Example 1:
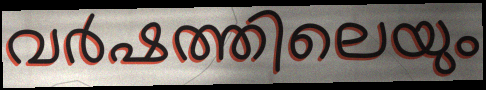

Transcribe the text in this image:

വർഷത്തിലെയും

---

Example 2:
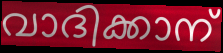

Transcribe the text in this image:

വാദിക്കാന്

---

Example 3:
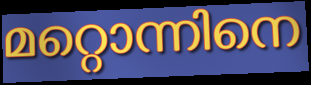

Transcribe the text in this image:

മറ്റൊന്നിനെ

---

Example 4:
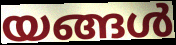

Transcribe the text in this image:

യങ്ങൾ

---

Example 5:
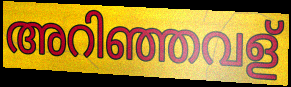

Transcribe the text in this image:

അറിഞ്ഞവള്